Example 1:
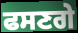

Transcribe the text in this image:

ਫਸਣਗੇ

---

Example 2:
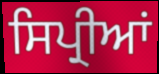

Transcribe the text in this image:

ਸਿਪ੍ਰੀਆਂ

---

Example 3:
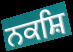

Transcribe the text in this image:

ਨਕਸ਼ਿ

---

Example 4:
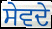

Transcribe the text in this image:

ਸੇਵਦੇ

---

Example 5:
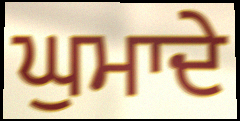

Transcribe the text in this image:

ਘੁਮਾਦੇ